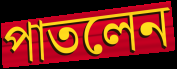
পাতলেন